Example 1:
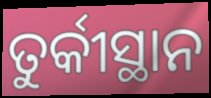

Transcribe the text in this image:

ତୁର୍କୀସ୍ଥାନ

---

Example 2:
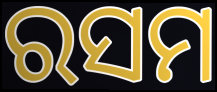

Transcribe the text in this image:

ରସମ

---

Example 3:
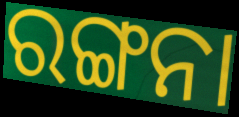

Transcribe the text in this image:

ରଙ୍ଗନା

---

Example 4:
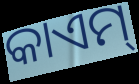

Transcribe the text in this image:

କାଏମ୍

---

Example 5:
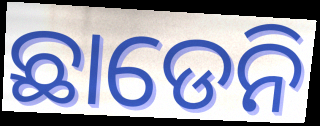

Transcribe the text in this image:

ଛାଡେନି